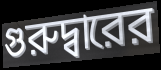
গুরুদ্বারের